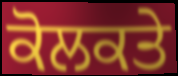
ਕੋਲਕਤੇ